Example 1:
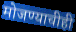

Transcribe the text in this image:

मोजण्याचीही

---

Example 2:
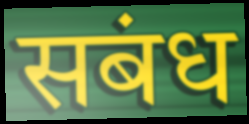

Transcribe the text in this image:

सबंध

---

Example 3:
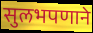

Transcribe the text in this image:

सुलभपणाने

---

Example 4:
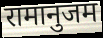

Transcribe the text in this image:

रामानुजम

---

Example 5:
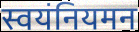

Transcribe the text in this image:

स्वयंनियमन